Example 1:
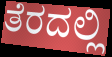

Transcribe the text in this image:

ತೆರದಲ್ಲಿ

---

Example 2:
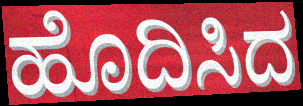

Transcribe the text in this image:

ಹೊದಿಸಿದ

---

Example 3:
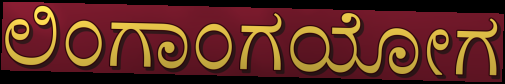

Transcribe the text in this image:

ಲಿಂಗಾಂಗಯೋಗ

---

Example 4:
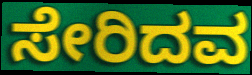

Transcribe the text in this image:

ಸೇರಿದವ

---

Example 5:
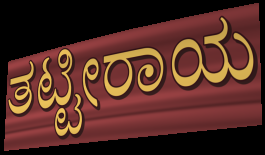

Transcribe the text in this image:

ತಟ್ಟೀರಾಯ